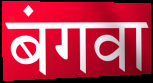
बंगवा